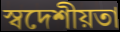
স্বদেশীয়তা